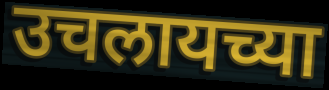
उचलायच्या